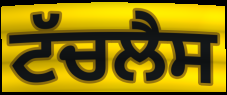
ਟੱਚਲੈਸ